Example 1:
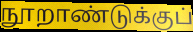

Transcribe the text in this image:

நூறாண்டுக்குப்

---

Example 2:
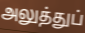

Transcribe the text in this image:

அலுத்துப்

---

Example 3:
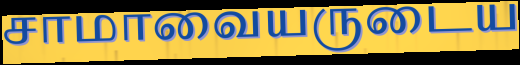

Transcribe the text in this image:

சாமாவையருடைய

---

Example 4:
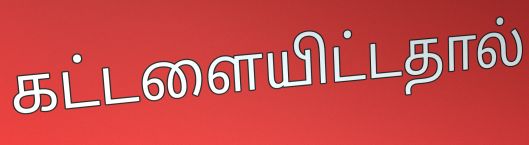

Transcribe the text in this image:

கட்டளையிட்டதால்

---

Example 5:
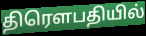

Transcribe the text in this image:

திரௌபதியில்